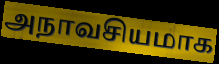
அநாவசியமாக